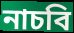
নাচবি